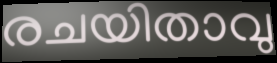
രചയിതാവു